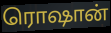
ரொஷான்